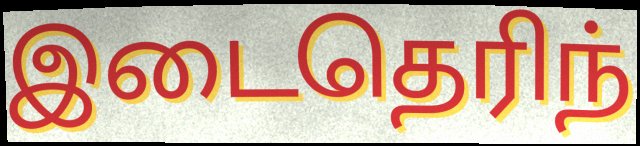
இடைதெரிந்